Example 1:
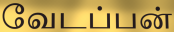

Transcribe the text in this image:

வேடப்பன்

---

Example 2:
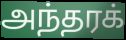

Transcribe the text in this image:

அந்தரக்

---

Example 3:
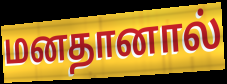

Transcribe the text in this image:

மனதானால்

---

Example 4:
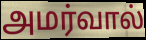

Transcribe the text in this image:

அமர்வால்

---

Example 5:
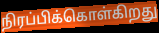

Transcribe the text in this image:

நிரப்பிக்கொள்கிறது